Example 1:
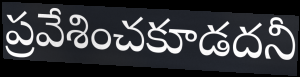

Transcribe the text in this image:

ప్రవేశించకూడదనీ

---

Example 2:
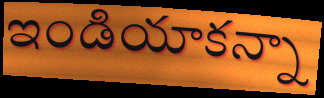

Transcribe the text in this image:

ఇండియాకన్నా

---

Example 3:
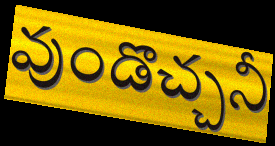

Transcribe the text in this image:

వుండొచ్చనీ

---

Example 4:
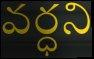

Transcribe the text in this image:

వర్ధని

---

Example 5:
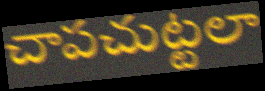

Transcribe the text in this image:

చాపచుట్టలా